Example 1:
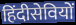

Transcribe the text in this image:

हिंदीसेवियों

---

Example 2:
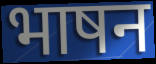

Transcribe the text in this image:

भाषन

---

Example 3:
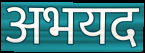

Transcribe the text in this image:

अभयद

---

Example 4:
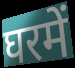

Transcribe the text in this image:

घरमें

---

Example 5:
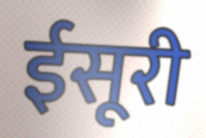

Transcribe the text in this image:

ईसूरी